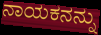
ನಾಯಕನನ್ನು